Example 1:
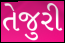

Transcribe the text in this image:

તેજુરી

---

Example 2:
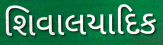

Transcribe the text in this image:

શિવાલયાદિક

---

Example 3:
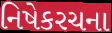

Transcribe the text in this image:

નિષેકરચના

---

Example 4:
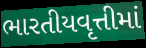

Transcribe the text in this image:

ભારતીયવૃત્તીમાં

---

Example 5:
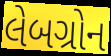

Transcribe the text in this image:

લેબગ્રોન